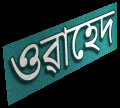
ওৱাহেদ